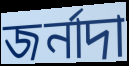
জর্নাদা